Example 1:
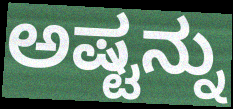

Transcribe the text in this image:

ಅಷ್ಟನ್ನು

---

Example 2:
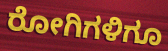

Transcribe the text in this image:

ರೋಗಿಗಳಿಗೂ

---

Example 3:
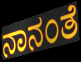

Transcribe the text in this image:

ನಾನಂತೆ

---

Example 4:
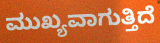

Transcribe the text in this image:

ಮುಖ್ಯವಾಗುತ್ತಿದೆ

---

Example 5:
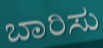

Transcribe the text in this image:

ಬಾರಿಸು